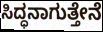
ಸಿದ್ಧನಾಗುತ್ತೇನೆ